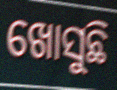
ଖୋସୁଛି